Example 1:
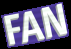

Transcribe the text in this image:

FAN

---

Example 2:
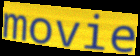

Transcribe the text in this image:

movie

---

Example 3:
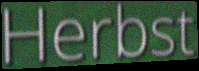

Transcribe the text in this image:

Herbst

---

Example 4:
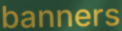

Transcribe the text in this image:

banners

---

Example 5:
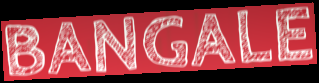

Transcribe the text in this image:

BANGALE